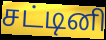
சட்டினி